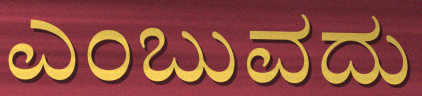
ಎಂಬುವದು